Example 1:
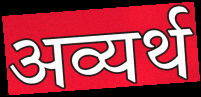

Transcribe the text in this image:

अव्यर्थ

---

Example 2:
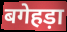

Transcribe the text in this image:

बगेहड़ा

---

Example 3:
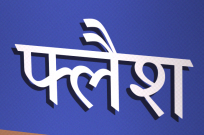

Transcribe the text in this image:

फ्लैश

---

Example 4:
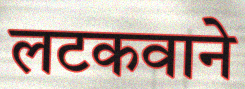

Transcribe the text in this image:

लटकवाने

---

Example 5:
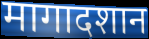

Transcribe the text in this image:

मागादशान